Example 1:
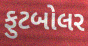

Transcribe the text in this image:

ફુટબોલર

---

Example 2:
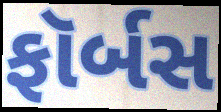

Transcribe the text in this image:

ફૉર્બસ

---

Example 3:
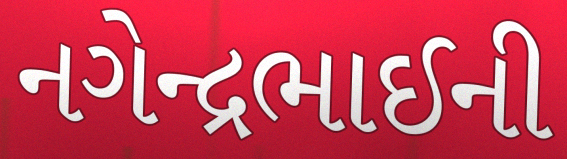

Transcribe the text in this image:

નગેન્દ્રભાઈની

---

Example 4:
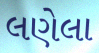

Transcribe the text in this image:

લણેલા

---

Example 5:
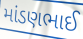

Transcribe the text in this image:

માંડણભાઈ